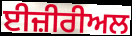
ਈਜ਼ੀਰੀਅਲ